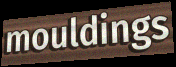
mouldings